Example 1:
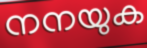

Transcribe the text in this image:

നനയുക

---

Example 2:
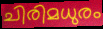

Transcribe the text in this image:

ചിരിമധുരം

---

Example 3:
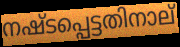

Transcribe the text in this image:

നഷ്ടപ്പെട്ടതിനാല്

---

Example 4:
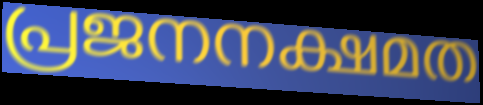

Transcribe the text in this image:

പ്രജനനക്ഷമത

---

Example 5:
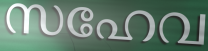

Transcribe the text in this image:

സഹേവ